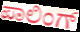
ಪಾಲಿಂಗ್